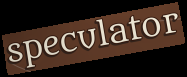
speculator